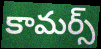
కామర్స్